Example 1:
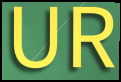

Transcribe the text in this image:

UR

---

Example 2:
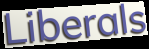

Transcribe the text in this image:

Liberals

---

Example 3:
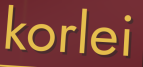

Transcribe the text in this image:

korlei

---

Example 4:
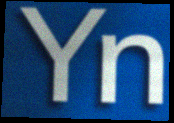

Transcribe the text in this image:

Yn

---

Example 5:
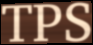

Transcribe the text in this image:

TPS